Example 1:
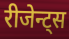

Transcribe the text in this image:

रीजेन्ट्स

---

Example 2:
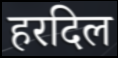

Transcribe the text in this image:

हरदिल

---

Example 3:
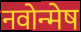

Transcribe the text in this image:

नवोन्‍मेष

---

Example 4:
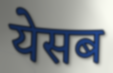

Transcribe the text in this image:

येसब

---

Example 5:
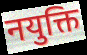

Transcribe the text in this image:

नयुक्ति